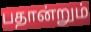
பதான்றும்